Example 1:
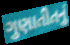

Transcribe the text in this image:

ગુણાતીતનું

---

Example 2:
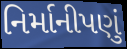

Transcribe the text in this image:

નિર્માનીપણું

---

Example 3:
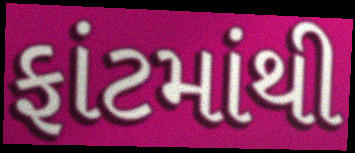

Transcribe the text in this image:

ફાંટમાંથી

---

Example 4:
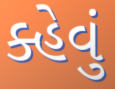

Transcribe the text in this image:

ક્હેવું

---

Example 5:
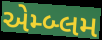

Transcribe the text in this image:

એમ્બ્લમ